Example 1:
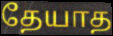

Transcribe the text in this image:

தேயாத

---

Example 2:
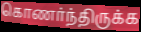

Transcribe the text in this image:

கொணர்ந்திருக்க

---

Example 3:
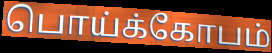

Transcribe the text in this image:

பொய்க்கோபம்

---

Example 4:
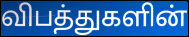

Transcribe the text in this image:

விபத்துகளின்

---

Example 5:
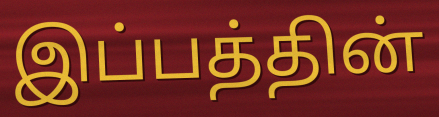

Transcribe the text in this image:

இப்பத்தின்